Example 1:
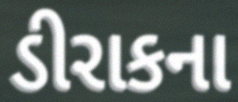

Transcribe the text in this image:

ડીરાકના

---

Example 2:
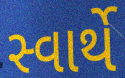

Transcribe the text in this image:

સ્વાર્થે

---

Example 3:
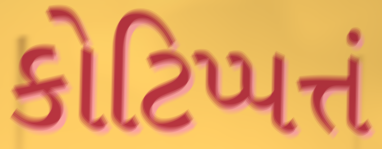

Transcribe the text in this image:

કોટિપ્પત્તં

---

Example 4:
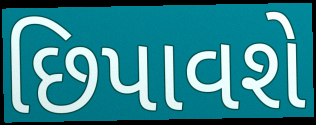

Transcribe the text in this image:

છિપાવશે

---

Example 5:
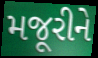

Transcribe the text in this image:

મજૂરીને